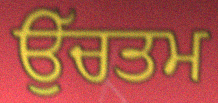
ਉੱਚਤਮ